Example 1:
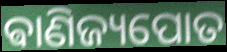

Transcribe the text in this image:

ଵାଣିଜ୍ୟପୋତ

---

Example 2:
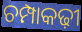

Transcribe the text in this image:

ଚମ୍ପାକଢ଼ୀ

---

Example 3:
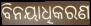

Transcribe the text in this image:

ବିନୟାଧିକରଣ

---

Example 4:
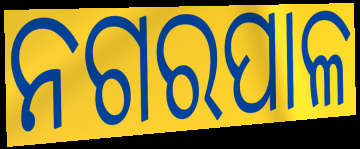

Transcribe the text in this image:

ନଗରପାଳ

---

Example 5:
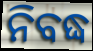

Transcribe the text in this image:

ନିବଦ୍ଧ